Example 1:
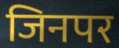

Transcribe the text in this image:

जिनपर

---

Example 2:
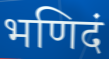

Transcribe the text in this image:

भणिदं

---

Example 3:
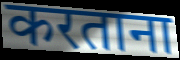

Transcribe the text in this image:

करताना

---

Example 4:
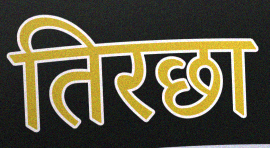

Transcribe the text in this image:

तिरछा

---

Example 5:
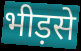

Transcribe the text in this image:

भीड़से